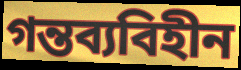
গন্তব্যবিহীন